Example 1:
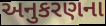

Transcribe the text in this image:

અનુકરણના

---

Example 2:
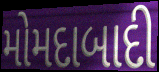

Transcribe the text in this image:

મોમદાબાદી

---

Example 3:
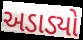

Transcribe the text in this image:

અડાડ્યો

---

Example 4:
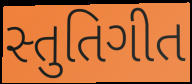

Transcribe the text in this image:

સ્તુતિગીત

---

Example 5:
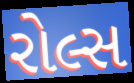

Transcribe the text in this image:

રોલ્સ